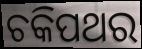
ଚକିପଥର